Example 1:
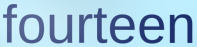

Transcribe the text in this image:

fourteen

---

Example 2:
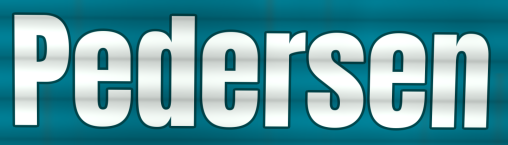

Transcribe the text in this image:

Pedersen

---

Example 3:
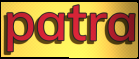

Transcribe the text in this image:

patra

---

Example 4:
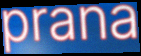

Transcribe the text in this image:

prana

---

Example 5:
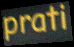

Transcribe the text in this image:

prati